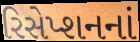
રિસેપ્શનનાં